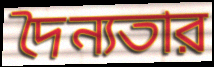
দৈন্যতার